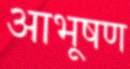
आभूषण